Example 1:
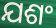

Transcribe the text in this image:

ଯଶଂ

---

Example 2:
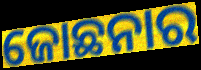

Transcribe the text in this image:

ଜୋଛନାର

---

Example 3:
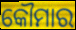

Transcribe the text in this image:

କୌମାର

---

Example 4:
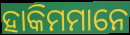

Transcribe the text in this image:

ହାକିମମାନେ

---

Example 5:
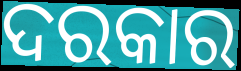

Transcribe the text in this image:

ଦରକାର